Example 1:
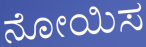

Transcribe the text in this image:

ನೋಯಿಸ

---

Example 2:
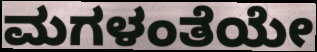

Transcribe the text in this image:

ಮಗಳಂತೆಯೇ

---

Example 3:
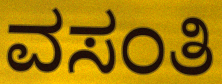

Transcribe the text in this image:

ವಸಂತಿ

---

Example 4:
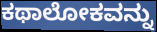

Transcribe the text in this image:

ಕಥಾಲೋಕವನ್ನು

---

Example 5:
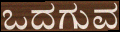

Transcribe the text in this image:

ಒದಗುವ